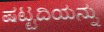
ಷಟ್ಟದಿಯನ್ನು